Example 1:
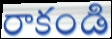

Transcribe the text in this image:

రాకండి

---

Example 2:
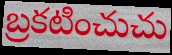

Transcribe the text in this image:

బ్రకటించుచు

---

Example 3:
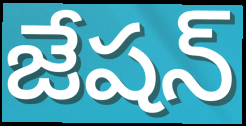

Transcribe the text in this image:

జేషన్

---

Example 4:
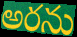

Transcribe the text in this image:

అరను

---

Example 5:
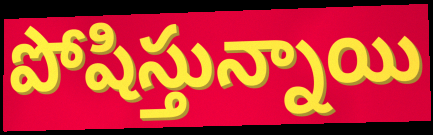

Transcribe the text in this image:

పోషిస్తున్నాయి